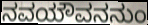
ನವಯೌವನನುಂ